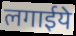
लगाईये